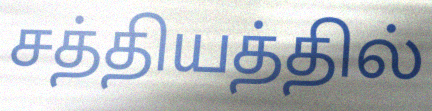
சத்தியத்தில்